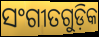
ସଂଗୀତଗୁଡ଼ିକ